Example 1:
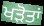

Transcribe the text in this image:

ਖੜੋਤਾਂ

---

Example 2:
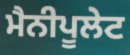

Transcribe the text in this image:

ਮੈਨੀਪੂਲੇਟ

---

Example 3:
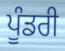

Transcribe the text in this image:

ਪੂੰਡਰੀ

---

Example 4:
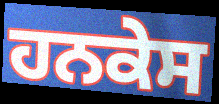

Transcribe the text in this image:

ਹਨਕੇਸ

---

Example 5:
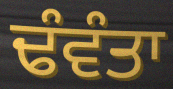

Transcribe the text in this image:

ਢੰਵੰਤਾ